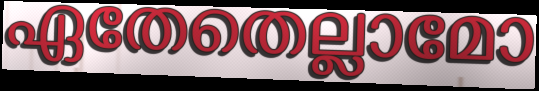
ഏതേതെല്ലാമോ